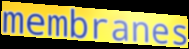
membranes